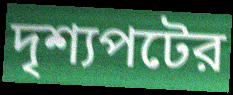
দৃশ্যপটের